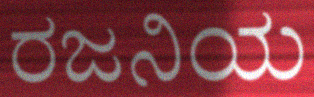
ರಜನಿಯ